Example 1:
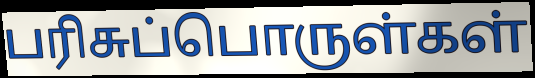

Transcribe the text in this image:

பரிசுப்பொருள்கள்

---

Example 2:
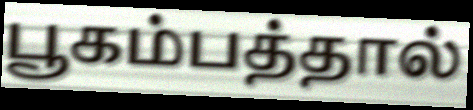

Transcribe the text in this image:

பூகம்பத்தால்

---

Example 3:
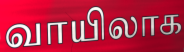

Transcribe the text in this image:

வாயிலாக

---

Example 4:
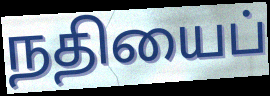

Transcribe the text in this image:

நதியைப்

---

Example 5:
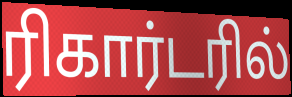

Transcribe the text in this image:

ரிகார்டரில்